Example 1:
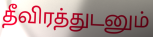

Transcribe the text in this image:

தீவிரத்துடனும்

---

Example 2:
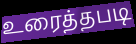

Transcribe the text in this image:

உரைத்தபடி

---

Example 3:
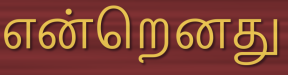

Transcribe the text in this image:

என்றெனது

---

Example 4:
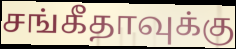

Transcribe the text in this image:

சங்கீதாவுக்கு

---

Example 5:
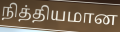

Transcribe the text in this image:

நித்தியமான